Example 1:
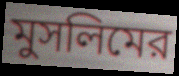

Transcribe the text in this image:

মুসলিমের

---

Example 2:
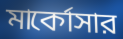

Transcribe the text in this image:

মার্কোসার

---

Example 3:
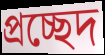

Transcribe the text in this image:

প্রচ্ছেদ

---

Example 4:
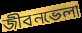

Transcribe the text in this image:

জীবনভেলা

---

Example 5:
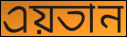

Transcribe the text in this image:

এয়তান